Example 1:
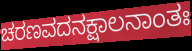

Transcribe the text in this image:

ಚರಣವದನಕ್ಷಾಲನಾಂತಃ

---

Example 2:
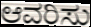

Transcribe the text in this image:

ಆವರಿಸು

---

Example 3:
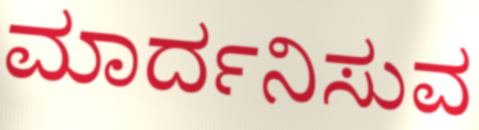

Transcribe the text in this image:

ಮಾರ್ದನಿಸುವ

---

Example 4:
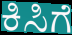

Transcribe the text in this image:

ಕಿಸಿಗೆ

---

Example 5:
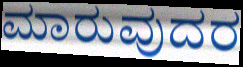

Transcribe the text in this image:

ಮಾರುವುದರ